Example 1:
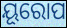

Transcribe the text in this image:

ୟୂରୋପ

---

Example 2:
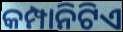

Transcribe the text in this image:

କମ୍ପାନିଟିଏ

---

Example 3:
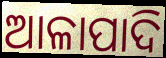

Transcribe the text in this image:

ଆଳାପାଦି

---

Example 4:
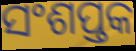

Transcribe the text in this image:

ସଂଶପ୍ତକ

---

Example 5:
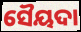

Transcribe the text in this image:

ସୈୟଦା